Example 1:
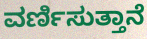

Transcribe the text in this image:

ವರ್ಣಿಸುತ್ತಾನೆ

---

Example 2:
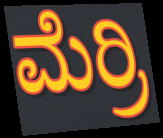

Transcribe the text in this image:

ಮೆರ್ರಿ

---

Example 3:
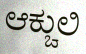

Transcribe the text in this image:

ಆಕ್ಚುಲಿ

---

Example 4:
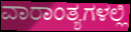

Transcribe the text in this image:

ವಾರಾಂತ್ಯಗಳಲ್ಲಿ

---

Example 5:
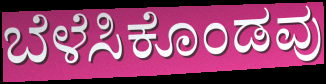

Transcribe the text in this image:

ಬೆಳೆಸಿಕೊಂಡವು